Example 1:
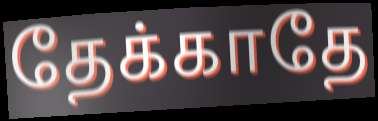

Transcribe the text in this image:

தேக்காதே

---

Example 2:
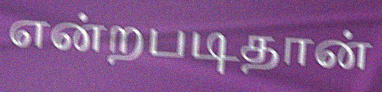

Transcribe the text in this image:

என்றபடிதான்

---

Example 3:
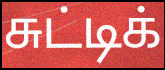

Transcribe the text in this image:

சுட்டிக்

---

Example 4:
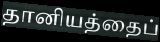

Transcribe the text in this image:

தானியத்தைப்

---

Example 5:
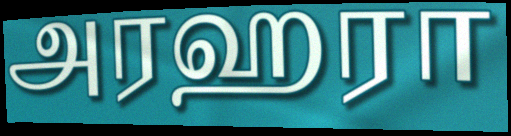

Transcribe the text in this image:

அரஹரா